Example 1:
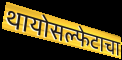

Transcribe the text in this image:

थायोसल्फेटाचा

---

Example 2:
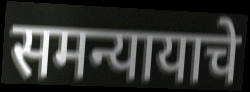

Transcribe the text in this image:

समन्यायाचे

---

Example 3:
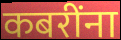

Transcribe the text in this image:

कबरींना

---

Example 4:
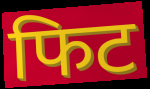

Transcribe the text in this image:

फिट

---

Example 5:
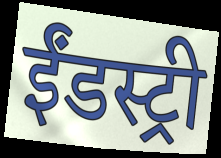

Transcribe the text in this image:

ईंडस्ट्री